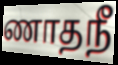
ணாதநீ